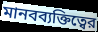
মানবব্যক্তিত্বের